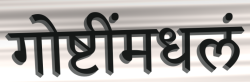
गोष्टींमधलं